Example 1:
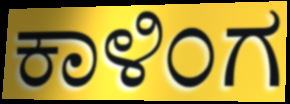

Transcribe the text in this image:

ಕಾಳಿಂಗ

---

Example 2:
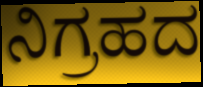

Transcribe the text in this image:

ನಿಗ್ರಹದ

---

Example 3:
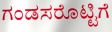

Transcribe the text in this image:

ಗಂಡಸರೊಟ್ಟಿಗೆ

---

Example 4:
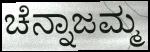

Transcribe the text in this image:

ಚೆನ್ನಾಜಮ್ಮ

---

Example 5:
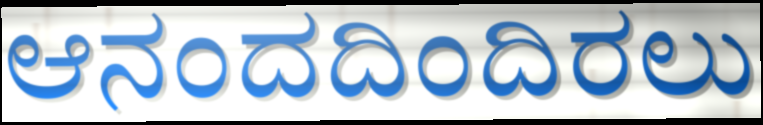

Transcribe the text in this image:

ಆನಂದದಿಂದಿರಲು